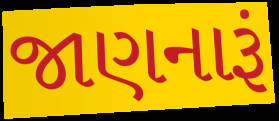
જાણનારૂં